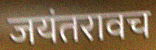
जयंतरावच